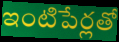
ఇంటిపేర్లతో